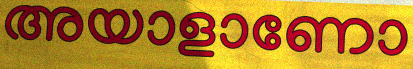
അയാളാണോ